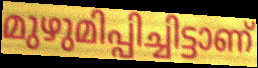
മുഴുമിപ്പിച്ചിട്ടാണ്